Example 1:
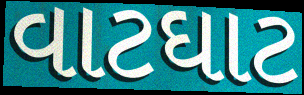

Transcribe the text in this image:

વાટઘાટ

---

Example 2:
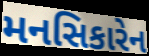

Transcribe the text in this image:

મનસિકારેન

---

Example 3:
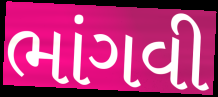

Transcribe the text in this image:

ભાંગવી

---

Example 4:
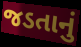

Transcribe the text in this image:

જડતાનું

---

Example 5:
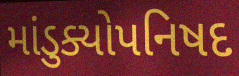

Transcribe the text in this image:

માંડુક્યોપનિષદ